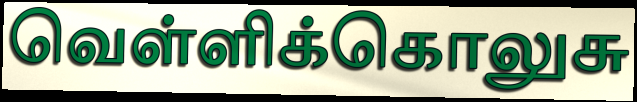
வெள்ளிக்கொலுசு